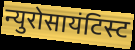
न्युरोसायंटिस्ट